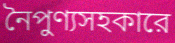
নৈপুণ্যসহকারে